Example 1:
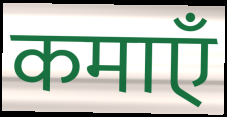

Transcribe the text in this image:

कमाएँ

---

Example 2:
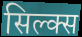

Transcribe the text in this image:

सिल्क्स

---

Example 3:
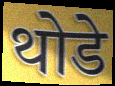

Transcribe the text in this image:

थोडे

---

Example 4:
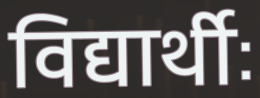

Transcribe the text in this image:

विद्यार्थीः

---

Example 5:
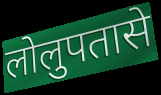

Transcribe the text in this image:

लोलुपतासे